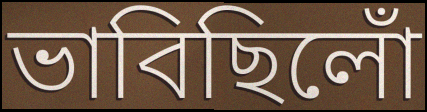
ভাবিছিলোঁ